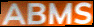
ABMS